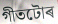
গীতটোৰ